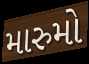
મારુમો